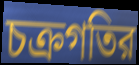
চক্রগতির